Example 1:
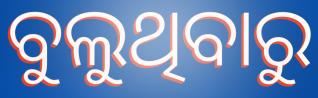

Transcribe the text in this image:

ବୁଲୁଥିବାରୁ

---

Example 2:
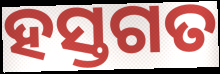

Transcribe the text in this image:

ହସ୍ତଗତ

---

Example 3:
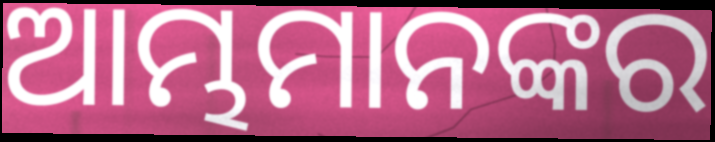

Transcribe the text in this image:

ଆମ୍ଭମାନଙ୍କର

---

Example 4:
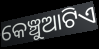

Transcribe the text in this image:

କେଞ୍ଚୁଆଟିଏ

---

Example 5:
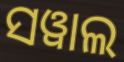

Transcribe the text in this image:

ସୱାଲ